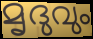
മൃദുവും